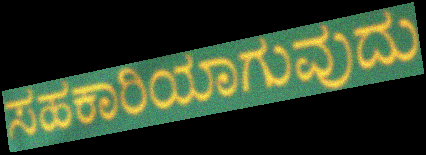
ಸಹಕಾರಿಯಾಗುವುದು